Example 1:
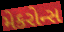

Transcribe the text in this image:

મેકરોન્સ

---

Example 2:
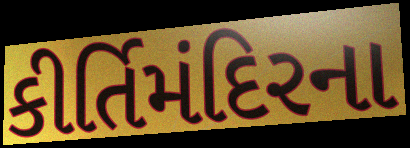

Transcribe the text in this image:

કીર્તિમંદિરના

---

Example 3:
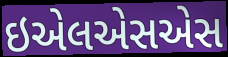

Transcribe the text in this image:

ઇએલએસએસ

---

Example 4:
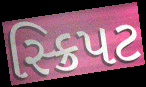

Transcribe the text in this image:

સ્ક્રિપટ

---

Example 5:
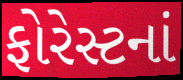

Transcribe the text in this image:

ફોરેસ્ટનાં